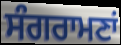
ਸੰਗਰਾਮਣਾਂ